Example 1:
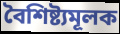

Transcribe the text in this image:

বৈশিষ্ট্যমূলক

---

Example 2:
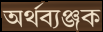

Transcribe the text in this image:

অৰ্থব্যঞ্জক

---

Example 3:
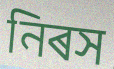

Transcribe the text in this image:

নিৰস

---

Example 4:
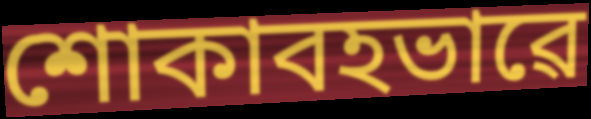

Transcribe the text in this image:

শোকাবহভাৱে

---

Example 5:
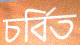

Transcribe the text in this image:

চৰ্বিত